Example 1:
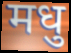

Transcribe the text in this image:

मधु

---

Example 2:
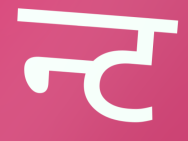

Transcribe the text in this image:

न्ट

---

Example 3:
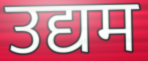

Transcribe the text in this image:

उद्यम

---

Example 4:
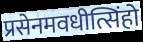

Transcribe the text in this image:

प्रसेनमवधीत्सिंहो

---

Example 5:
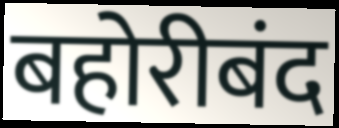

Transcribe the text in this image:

बहोरीबंद